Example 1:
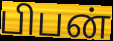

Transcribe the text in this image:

பிபன்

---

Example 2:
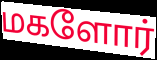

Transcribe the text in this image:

மகளோர்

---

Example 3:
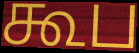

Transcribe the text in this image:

கூப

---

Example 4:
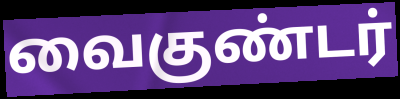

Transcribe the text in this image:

வைகுண்டர்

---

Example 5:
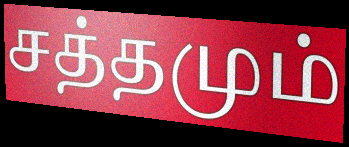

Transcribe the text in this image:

சத்தமும்